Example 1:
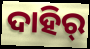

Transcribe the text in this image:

ଦାହିର୍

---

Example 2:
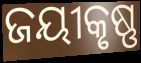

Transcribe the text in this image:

ଜୟୀକୃଷ୍ଣ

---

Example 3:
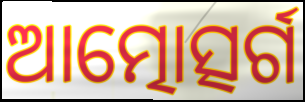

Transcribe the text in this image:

ଆତ୍ମୋତ୍ସର୍ଗ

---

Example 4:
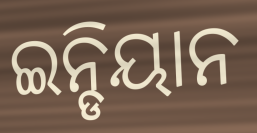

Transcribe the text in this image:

ଇନ୍ଡିୟାନ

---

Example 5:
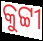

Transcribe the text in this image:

କୁଟ୍ଟୀ